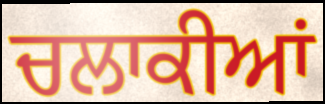
ਚਲਾਕੀਆਂ